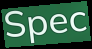
Spec